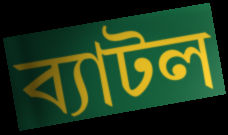
ব্যাটল